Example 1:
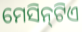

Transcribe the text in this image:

ମେସିନ୍‌ଟିଏ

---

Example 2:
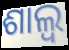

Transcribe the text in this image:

ଶାଲ୍ୱ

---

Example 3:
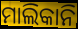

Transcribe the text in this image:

ମାଲିକାନି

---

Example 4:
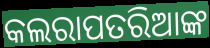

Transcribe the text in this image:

କଲରାପତରିଆଙ୍କ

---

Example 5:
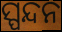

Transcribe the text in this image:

ସ୍ପନ୍ଦନ